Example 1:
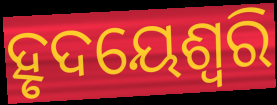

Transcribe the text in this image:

ହୃଦୟେଶ୍ଵରି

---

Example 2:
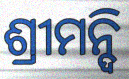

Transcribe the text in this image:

ଶ୍ରୀମନ୍ଦି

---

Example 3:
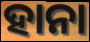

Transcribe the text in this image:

ହାନା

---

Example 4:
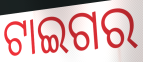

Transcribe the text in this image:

ଟାଇଗର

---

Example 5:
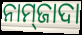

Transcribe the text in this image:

ନାମ୍‌ଜାଦା